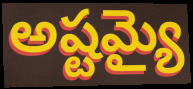
అష్టమ్యై